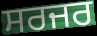
ਸਰਜਰ